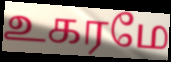
உகரமே